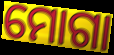
ମୋଗା